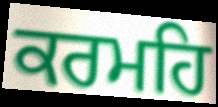
ਕਰਮਹਿ